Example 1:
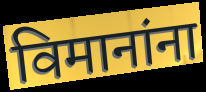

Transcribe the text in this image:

विमानांना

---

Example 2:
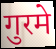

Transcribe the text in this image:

गुरमे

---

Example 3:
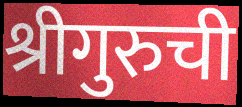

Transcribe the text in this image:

श्रीगुरुची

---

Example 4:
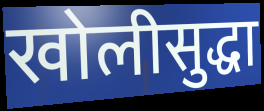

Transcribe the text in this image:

खोलीसुद्धा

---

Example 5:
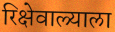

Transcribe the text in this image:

रिक्षेवाल्याला